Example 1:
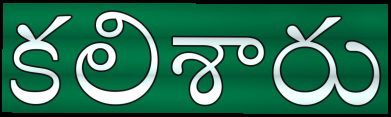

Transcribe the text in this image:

కలిశారు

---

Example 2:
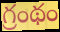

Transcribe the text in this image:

గ్రంథం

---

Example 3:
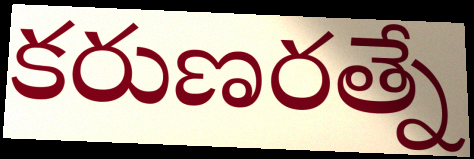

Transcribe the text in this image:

కరుణరత్నే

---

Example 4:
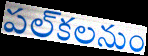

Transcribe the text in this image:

పల్‌కలనుం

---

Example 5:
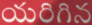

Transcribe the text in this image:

యరిగిన